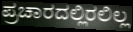
ಪ್ರಚಾರದಲ್ಲಿರಲಿಲ್ಲ